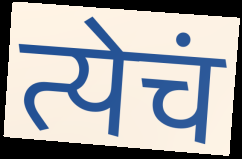
त्येचं